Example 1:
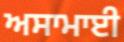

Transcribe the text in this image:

ਅਸਾਮਾਈ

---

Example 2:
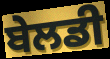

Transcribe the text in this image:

ਬੇਲਡੀ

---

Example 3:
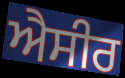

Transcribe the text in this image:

ਐਸੀਰ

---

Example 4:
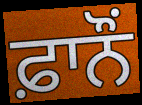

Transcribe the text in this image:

ਫ਼ਾਨੌਂ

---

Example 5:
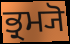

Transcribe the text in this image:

ਭ੍ਰਮ੍ਯੋ